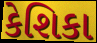
કેશિકા